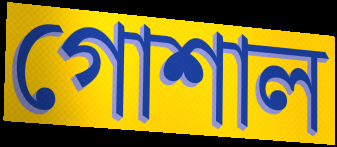
গোশাল